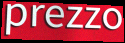
prezzo